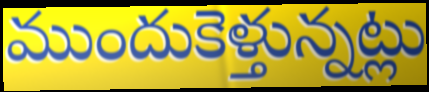
ముందుకెళ్తున్నట్లు